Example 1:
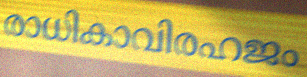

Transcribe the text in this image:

രാധികാവിരഹജം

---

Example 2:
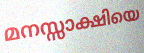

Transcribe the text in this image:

മനസ്സാക്ഷിയെ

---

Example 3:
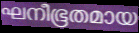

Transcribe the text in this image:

ഘനീഭൂതമായ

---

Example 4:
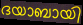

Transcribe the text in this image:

ദയാബായി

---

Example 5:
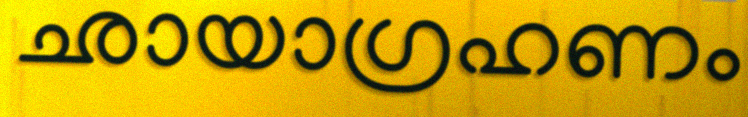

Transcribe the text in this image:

ഛായാഗ്രഹണം